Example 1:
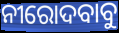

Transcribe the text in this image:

ନୀରୋଦବାବୁ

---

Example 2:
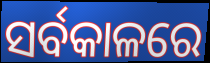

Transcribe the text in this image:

ସର୍ବକାଳରେ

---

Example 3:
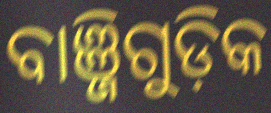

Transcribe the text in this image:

ବାଞ୍ଜିଗୁଡ଼ିକ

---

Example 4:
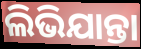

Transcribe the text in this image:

ଲିଭିଯାନ୍ତା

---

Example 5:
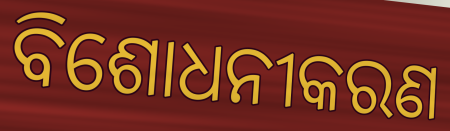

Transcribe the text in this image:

ବିଶୋଧନୀକରଣ